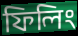
ফিলিং